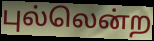
புல்லென்ற